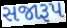
સજારૂપ